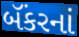
બૅંકરનાં